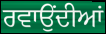
ਰਵਾਉਂਦੀਆਂ